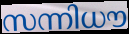
സന്നിധൗ